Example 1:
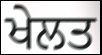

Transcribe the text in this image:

ਖੇਲਤ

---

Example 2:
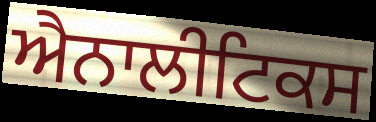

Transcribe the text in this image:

ਐਨਾਲੀਟਿਕਸ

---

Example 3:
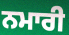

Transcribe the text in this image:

ਨਮਾਰੀ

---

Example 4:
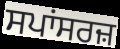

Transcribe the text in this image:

ਸਪਾਂਸਰਜ਼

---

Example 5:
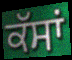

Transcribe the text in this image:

ਕੱਸਾਂ